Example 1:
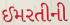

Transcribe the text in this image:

ઈમરતીની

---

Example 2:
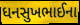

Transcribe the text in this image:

ધનસુખભાઈના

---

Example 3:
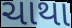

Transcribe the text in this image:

ચાથા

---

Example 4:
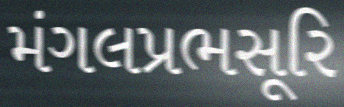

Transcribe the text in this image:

મંગલપ્રભસૂરિ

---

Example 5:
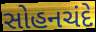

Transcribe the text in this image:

સોહનચંદે